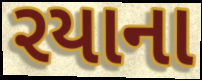
રયાના